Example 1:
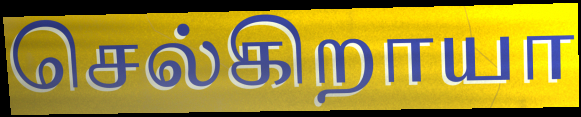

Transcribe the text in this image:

செல்கிறாயா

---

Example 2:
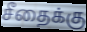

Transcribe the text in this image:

சீதைக்கு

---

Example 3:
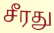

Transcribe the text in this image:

சீரது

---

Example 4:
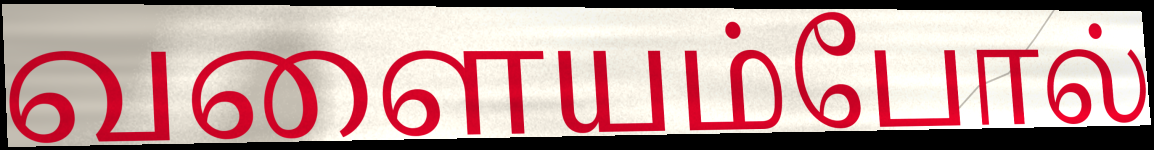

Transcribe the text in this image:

வளையம்போல்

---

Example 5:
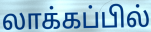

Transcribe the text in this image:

லாக்கப்பில்